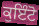
ਕੁਇੰਟੋ